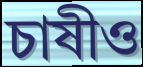
চাষীও